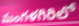
మంగళగిరిలో